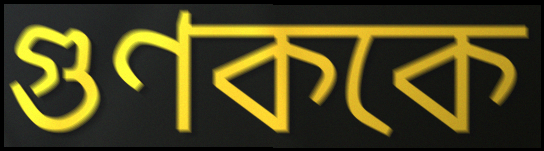
গুণককে